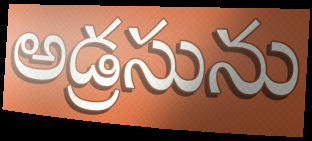
అడ్రసును